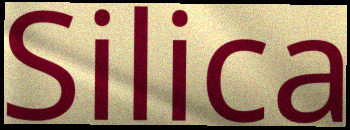
Silica